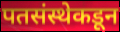
पतसंस्थेकडून